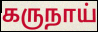
கருநாய்